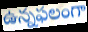
ఉన్నఫలంగా